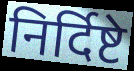
निर्दिष्टे